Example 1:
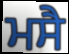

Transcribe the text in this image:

ਮਸੈ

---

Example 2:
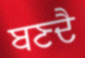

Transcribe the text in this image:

ਬਣਦੈ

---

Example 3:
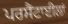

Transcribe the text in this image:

ਪਰਸੈਂਟਾਈਲਾਂ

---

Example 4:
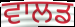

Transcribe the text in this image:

ਵਾਲਡ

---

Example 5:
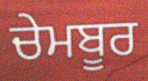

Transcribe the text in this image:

ਚੇਮਬੂਰ